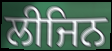
ਲੀਜਿਨ